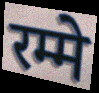
रम्मे